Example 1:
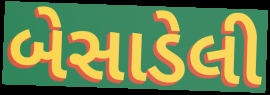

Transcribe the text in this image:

બેસાડેલી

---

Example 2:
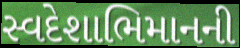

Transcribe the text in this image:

સ્વદેશાભિમાનની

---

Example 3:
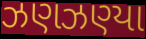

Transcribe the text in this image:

ઝણઝણ્યા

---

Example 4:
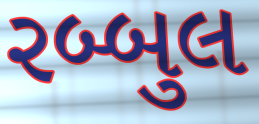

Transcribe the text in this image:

રબ્બુલ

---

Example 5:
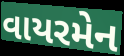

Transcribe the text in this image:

વાયરમેન